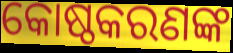
କୋଷ୍ଠକରଣଙ୍କ